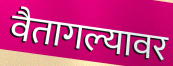
वैतागल्यावर